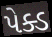
પેક્ડ